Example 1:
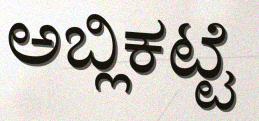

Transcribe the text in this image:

ಅಬ್ಲಿಕಟ್ಟೆ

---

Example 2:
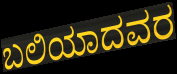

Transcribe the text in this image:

ಬಲಿಯಾದವರ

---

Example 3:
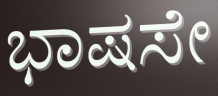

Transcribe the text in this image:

ಭಾಷಸೇ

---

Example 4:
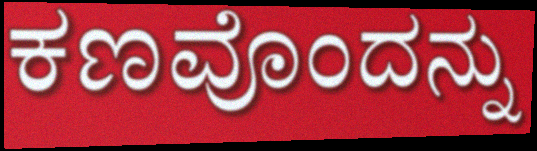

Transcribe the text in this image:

ಕಣವೊಂದನ್ನು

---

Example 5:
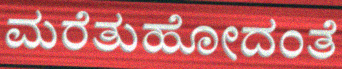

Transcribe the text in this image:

ಮರೆತುಹೋದಂತೆ